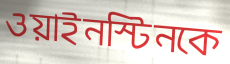
ওয়াইনস্টিনকে